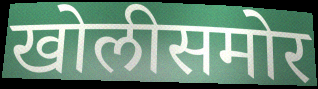
खोलीसमोर